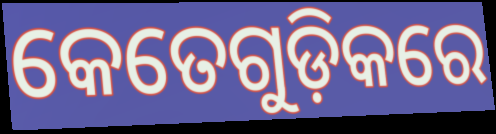
କେତେଗୁଡ଼ିକରେ